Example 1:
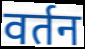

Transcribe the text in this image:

वर्तन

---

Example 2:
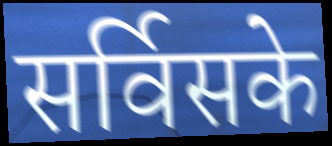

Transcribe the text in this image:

सर्विसके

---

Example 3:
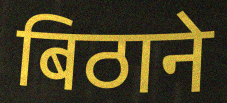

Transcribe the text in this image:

बिठाने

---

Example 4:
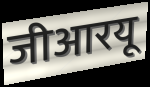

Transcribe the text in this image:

जीआरयू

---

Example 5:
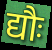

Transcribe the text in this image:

द्यौः